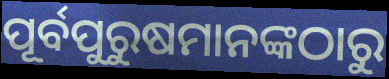
ପୂର୍ବପୁରୁଷମାନଙ୍କଠାରୁ